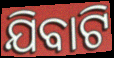
ଯିବାଟି